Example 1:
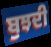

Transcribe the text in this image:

ਬੁਝਦੀ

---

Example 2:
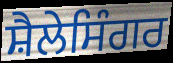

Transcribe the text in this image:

ਸ਼ੈਲੇਸਿੰਗਰ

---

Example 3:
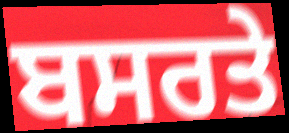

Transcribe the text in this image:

ਬਸਰਤੇ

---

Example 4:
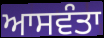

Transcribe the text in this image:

ਆਸਵੰਤਾ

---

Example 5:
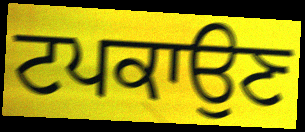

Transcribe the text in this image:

ਟਪਕਾਉਣ